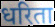
धरिता